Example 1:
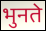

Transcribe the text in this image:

भुनते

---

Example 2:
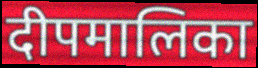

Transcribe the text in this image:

दीपमालिका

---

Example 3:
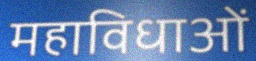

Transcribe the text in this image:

महाविधाओं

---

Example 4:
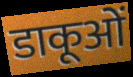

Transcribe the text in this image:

डाकूओं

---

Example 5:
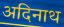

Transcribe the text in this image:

अदिनाथ